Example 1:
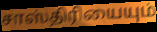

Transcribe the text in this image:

சாஸ்திரியையும்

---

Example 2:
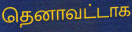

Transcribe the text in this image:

தெனாவட்டாக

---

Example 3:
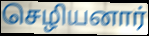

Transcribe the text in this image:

செழியனார்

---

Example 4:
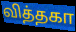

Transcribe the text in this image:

வித்தகா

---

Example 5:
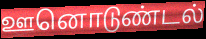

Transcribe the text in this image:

ஊனொடுண்டல்